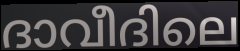
ദാവീദിലെ